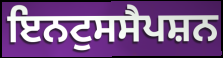
ਇਨਟੁਸਸੈਪਸ਼ਨ